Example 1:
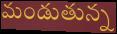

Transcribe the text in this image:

మండుతున్న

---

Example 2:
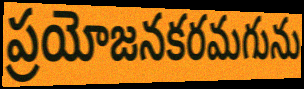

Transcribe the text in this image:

ప్రయోజనకరమగును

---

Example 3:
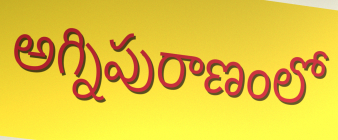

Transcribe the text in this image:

అగ్నిపురాణంలో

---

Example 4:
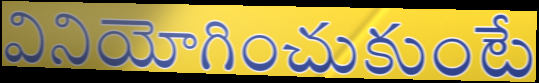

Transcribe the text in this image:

వినియోగించుకుంటే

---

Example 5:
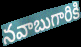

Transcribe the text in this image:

నవాబుగారికి